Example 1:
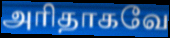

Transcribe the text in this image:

அரிதாகவே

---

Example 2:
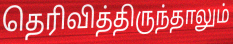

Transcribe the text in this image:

தெரிவித்திருந்தாலும்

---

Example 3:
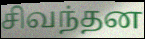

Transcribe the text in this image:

சிவந்தன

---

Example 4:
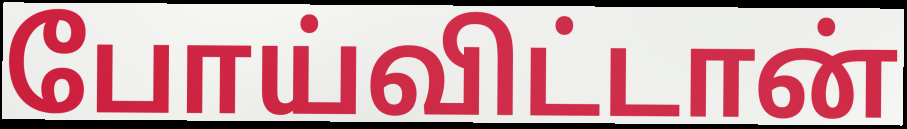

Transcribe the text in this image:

போய்விட்டான்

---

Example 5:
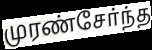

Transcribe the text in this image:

முரண்சேர்ந்த